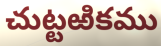
చుట్టఱికము